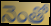
నెంతో